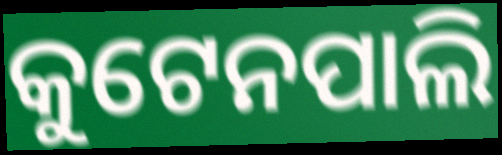
କୁଟେନପାଲି